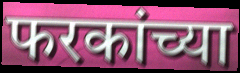
फरकांच्या